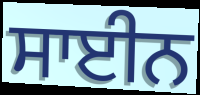
ਸਾਈਨ